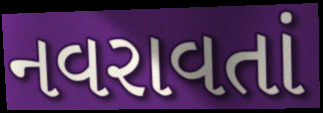
નવરાવતાં